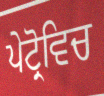
ਪੇਟ੍ਰੋਵਿਚ